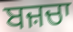
ਬਜ਼ਚਾ